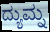
ದ್ಯುಮ್ನ